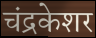
चंद्रकेशर